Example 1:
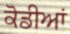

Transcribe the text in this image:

ਕੋਡੀਆਂ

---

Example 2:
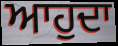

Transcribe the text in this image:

ਆਹੁਦਾ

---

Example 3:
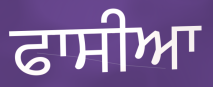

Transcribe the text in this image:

ਫਾਸੀਆ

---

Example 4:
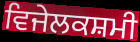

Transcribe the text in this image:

ਵਿਜੇਲਕਸ਼ਮੀ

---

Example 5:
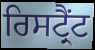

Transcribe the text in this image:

ਰਿਸਟ੍ਰੈਂਟ